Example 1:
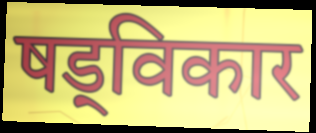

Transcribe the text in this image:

षड्‌विकार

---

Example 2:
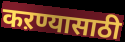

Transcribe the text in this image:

कऱण्यासाठी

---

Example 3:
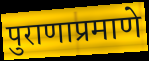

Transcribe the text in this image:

पुराणाप्रमाणे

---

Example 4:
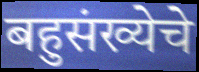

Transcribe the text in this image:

बहुसंख्येचे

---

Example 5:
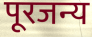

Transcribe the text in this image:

पूरजन्य